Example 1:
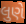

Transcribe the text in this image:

લુણે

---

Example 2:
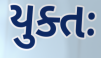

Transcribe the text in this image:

યુક્તઃ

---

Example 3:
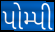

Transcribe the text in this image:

પોમ્પી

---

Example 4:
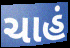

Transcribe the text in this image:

ચાહં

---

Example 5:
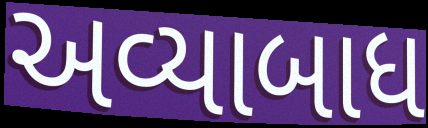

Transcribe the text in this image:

અવ્યાબાધ